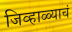
जिव्हाळ्याचं